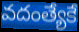
వదంత్యేకే